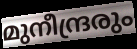
മുനീന്ദ്രരും